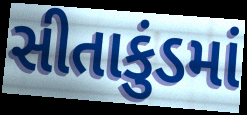
સીતાકુંડમાં